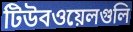
টিউবওয়েলগুলি